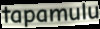
tapamulu